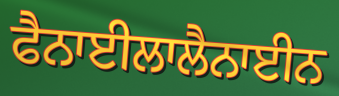
ਫੈਨਾਈਲਾਲੈਨਾਈਨ